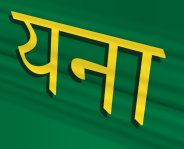
यना